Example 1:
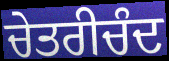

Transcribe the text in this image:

ਚੇਤਰੀਚੰਦ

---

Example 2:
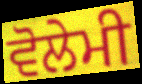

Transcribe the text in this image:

ਵੋਲੇਮੀ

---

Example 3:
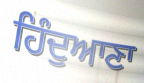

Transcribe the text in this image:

ਹਿੰਦੁਆਣਾ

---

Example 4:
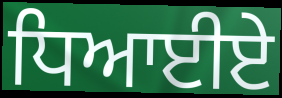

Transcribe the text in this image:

ਧਿਆਈਏ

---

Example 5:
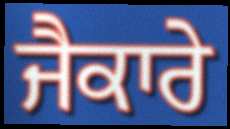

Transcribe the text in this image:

ਜੈਕਾਰੇ